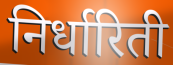
निर्धारिती